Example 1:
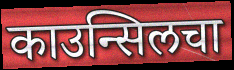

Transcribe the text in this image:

काउन्सिलचा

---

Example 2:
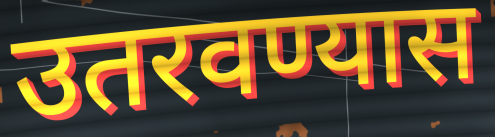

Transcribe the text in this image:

उतरवण्यास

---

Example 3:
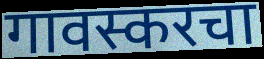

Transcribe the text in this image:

गावस्करचा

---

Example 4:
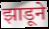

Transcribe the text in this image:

झाडूने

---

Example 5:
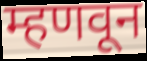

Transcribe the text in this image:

म्हणवून